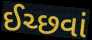
ઈચ્છવાં